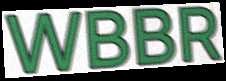
WBBR